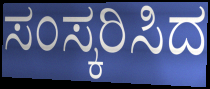
ಸಂಸ್ಕರಿಸಿದ